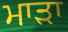
ਮਾਡ਼ਾ